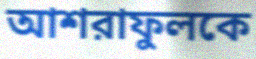
আশরাফুলকে